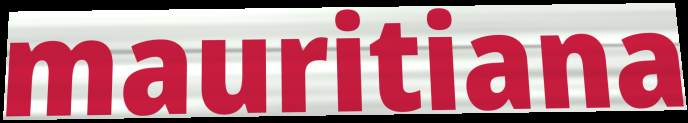
mauritiana